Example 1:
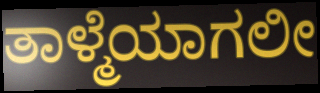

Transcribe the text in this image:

ತಾಳ್ಮೆಯಾಗಲೀ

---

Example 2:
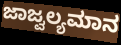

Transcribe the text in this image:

ಜಾಜ್ವಲ್ಯಮಾನ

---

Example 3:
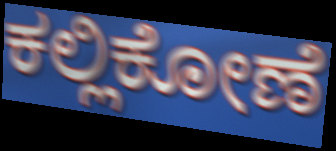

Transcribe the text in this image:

ಕಲ್ಲಿಕೋಣೆ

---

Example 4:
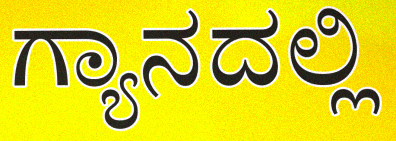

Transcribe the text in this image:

ಗ್ಯಾನದಲ್ಲಿ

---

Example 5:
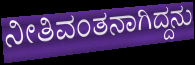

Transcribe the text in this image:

ನೀತಿವಂತನಾಗಿದ್ದನು